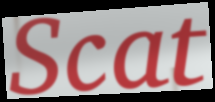
Scat